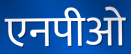
एनपीओ